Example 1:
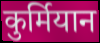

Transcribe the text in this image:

कुर्मियान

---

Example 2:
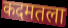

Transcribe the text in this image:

कदमतला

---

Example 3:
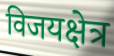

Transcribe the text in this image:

विजयक्षेत्र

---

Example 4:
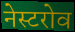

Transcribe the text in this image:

नेस्टरोव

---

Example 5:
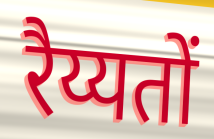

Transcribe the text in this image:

रैय्यतों